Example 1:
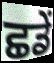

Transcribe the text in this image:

ਛਡੇਂ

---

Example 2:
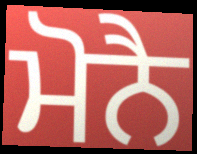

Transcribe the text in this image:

ਮੋਨੈ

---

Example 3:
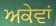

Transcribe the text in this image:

ਅਕੇਵਾਂ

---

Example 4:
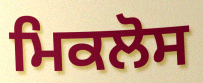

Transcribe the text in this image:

ਮਿਕਲੋਸ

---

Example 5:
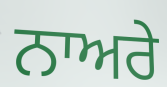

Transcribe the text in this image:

ਨਾਅਰੇ